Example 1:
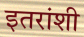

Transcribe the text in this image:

इतरांशी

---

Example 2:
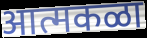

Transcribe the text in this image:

आत्मकळा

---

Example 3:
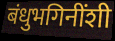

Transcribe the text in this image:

बंधुभगिनींशी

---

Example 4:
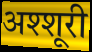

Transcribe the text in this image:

अश्‍शूरी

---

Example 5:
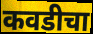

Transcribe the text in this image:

कवडीचा